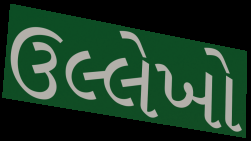
ઉલ્લેખો